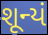
શૂન્યં